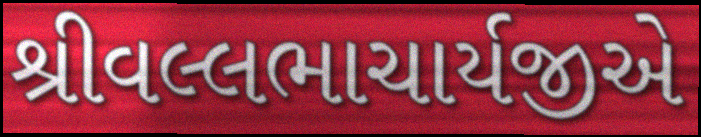
શ્રીવલ્લભાચાર્યજીએ